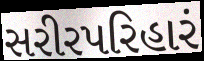
સરીરપરિહારં